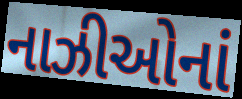
નાઝીઓનાં